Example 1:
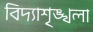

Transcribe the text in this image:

বিদ্যাশৃঙ্খলা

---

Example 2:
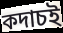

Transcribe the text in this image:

কদাচই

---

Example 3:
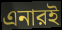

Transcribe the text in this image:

এনারই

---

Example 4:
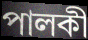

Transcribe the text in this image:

পালকী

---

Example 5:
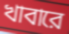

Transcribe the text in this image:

খাবারে